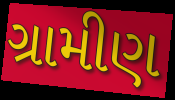
ગ્રામીણ